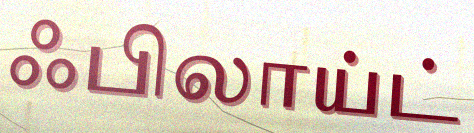
ஃபிலாய்ட்